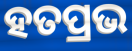
ହତପ୍ରଭ